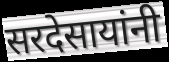
सरदेसायांनी